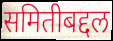
समितीबद्दल